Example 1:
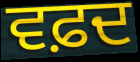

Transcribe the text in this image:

ਵਫ਼ਦ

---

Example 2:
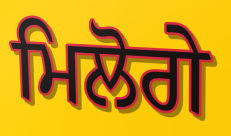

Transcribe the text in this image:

ਮਿਲੋਗੇ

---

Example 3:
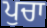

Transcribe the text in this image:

ਪੁਚਾ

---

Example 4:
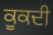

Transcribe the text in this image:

ਕੂਕਦੀ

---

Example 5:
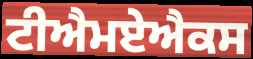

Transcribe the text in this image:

ਟੀਐਮਏਐਕਸ